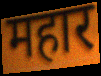
महार